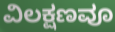
ವಿಲಕ್ಷಣವೂ